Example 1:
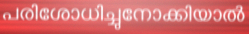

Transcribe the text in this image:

പരിശോധിച്ചുനോക്കിയാൽ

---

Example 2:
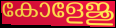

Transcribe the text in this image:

കോളേജു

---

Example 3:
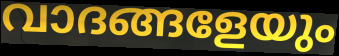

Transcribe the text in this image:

വാദങ്ങളേയും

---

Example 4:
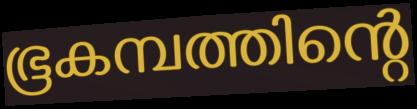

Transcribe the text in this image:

ഭൂകമ്പത്തിന്റെ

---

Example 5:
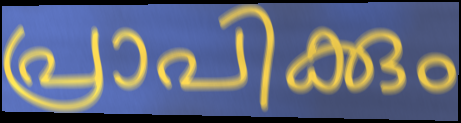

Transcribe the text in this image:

പ്രാപിക്കും